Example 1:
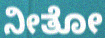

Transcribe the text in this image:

ನೀತೋ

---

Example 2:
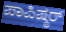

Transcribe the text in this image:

ಪಾಪಿಷ್ಠರ್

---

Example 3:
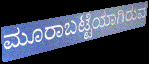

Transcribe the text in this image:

ಮೂರಾಬಟ್ಟೆಯಾಗಿರುವ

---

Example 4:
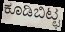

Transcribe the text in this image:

ಕೂಡಿಬಿಟ್ಟ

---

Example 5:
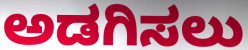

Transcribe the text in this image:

ಅಡಗಿಸಲು